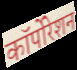
कॉर्पोरेशन